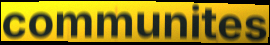
communites